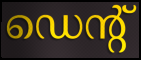
ഡെന്റ്